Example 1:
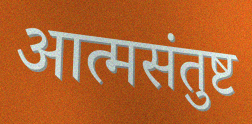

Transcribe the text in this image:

आत्मसंतुष्ट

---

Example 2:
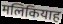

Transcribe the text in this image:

मलिकियाह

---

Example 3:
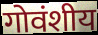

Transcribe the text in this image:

गोवंशीय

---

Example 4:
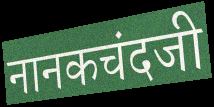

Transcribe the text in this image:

नानकचंदजी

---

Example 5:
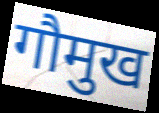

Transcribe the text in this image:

गौमुख